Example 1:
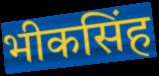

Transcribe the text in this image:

भीकसिंह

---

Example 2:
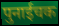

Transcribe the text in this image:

पुनाईचक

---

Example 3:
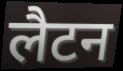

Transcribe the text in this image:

लैटन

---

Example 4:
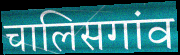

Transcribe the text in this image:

चालिसगांव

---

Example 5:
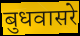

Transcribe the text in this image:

बुधवासरे